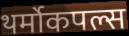
थर्मोकपल्स